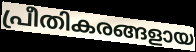
പ്രീതികരങ്ങളായ